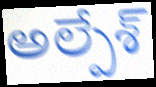
అల్పేశ్